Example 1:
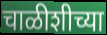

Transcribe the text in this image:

चाळीशीच्या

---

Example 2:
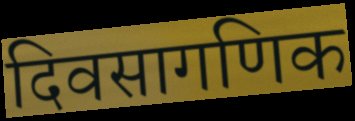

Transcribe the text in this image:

दिवसागणिक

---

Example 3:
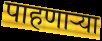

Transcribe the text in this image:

पाहणार्‍या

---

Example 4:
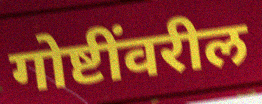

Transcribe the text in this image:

गोष्टींवरील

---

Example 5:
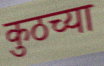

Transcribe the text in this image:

कुठच्या